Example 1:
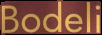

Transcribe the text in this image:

Bodeli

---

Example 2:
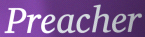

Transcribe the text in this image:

Preacher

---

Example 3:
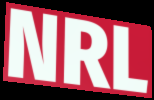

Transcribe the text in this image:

NRL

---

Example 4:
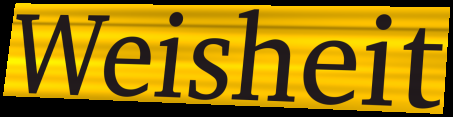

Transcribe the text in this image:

Weisheit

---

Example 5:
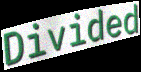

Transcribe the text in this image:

Divided